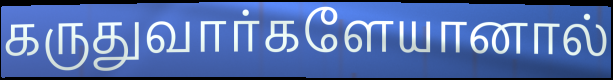
கருதுவார்களேயானால்